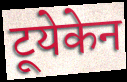
टूयेकेन